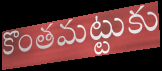
కొంతమట్టుకు